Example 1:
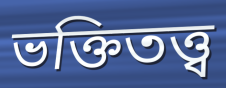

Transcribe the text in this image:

ভক্তিতত্ত্ব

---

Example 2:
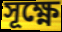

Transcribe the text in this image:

সূক্ষ্ণে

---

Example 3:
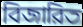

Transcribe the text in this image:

বিজারিত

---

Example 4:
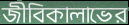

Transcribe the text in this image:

জীবিকালাভের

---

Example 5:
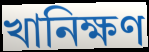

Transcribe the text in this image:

খানিক্ষণ